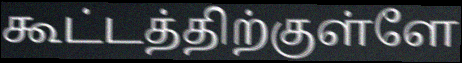
கூட்டத்திற்குள்ளே